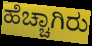
ಹೆಚ್ಚಾಗಿರು